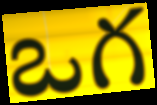
ఒగ